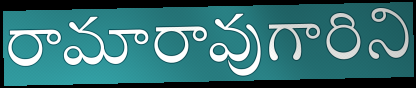
రామారావుగారిని